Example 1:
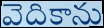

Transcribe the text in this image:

వెదికాను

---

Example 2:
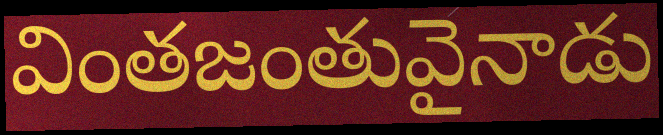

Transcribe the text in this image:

వింతజంతువైనాడు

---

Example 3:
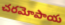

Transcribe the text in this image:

చరమోపాయ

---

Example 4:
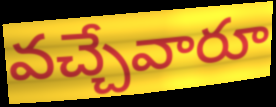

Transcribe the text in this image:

వచ్చేవారూ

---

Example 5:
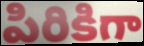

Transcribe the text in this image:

పిరికిగా